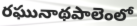
రఘునాథపాలెంలో